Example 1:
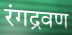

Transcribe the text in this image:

रंगद्रवण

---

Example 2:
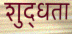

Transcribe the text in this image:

शुद्धता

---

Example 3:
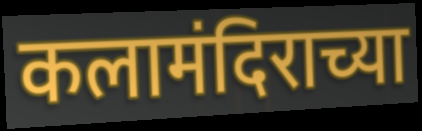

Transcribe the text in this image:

कलामंदिराच्या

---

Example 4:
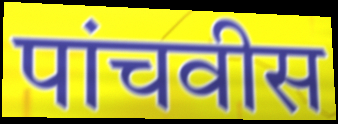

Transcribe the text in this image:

पांचवीस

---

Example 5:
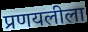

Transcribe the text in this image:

प्रणयलीला